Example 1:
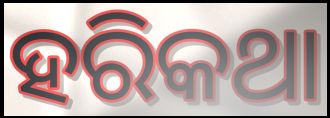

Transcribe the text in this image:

ହରିକଥା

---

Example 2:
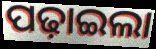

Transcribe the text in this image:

ପଢ଼ାଇଲା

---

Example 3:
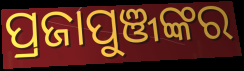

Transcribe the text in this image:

ପ୍ରଜାପୁଞ୍ଜଙ୍କର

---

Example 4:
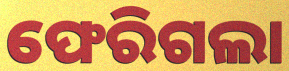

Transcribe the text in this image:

ଫେରିଗଲା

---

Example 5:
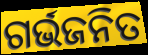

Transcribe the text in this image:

ଗର୍ଭଜନିତ